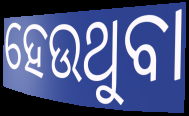
ହେଉଥୁବା